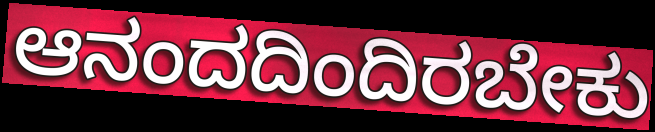
ಆನಂದದಿಂದಿರಬೇಕು